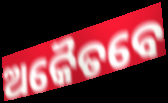
ଅକୈତବେ